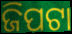
ଜିପଟା